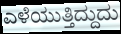
ಎಳೆಯುತ್ತಿದ್ದುದು